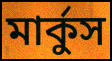
মার্কুস